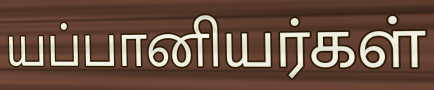
யப்பானியர்கள்